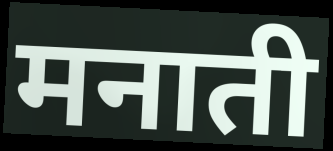
मनाती